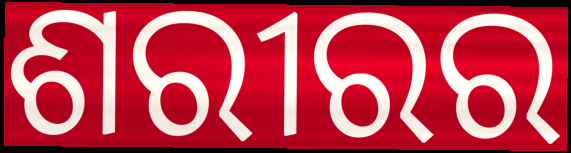
ଶରୀରର